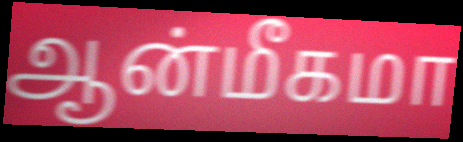
ஆன்மீகமா